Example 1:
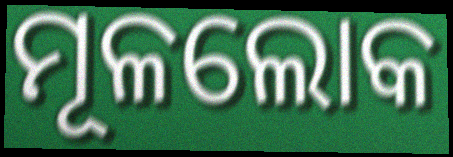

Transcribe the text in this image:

ମୂଳଲୋକ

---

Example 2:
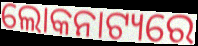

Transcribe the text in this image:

ଲୋକନାଟ୍ୟରେ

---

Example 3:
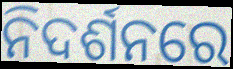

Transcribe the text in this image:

ନିଦର୍ଶନରେ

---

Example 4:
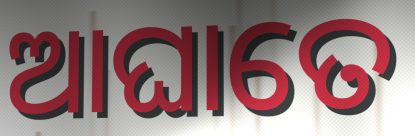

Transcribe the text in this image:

ଆଘାତେ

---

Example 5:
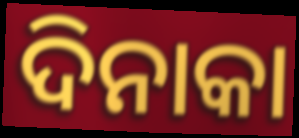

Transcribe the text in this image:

ଦିନାକା